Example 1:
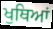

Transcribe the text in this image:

ਖੁਥਿਆਂ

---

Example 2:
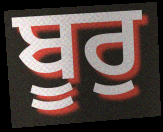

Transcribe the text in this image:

ਬੂਰੁ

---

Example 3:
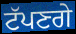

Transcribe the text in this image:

ਟੱਪਣਗੇ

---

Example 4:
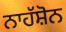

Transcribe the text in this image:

ਨਾਹੱਸ਼ੋਨ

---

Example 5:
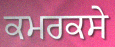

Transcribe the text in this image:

ਕਮਰਕਸੇ